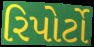
રિપોર્ટો